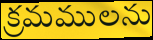
క్రమములను